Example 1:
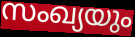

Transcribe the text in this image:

സംഖ്യയും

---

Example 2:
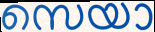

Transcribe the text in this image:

സെയാ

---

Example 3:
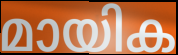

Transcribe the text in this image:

മായിക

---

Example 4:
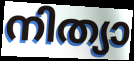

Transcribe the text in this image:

നിത്യാ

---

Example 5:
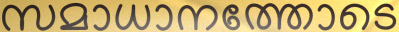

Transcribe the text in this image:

സമാധാനത്തോടെ